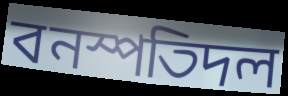
বনস্পতিদল